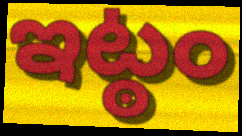
ఇట్ఠం